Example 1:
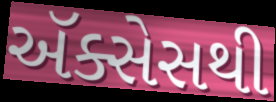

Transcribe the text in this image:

ઍક્સેસથી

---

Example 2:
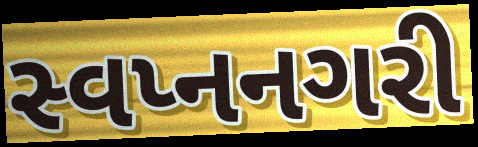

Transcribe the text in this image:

સ્વપ્નનગરી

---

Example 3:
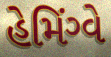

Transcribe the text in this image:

હેમિંગ્વે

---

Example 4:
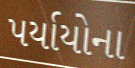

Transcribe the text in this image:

પર્યાયોના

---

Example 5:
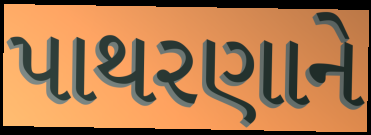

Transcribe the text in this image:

પાથરણાને